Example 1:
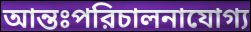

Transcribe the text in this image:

আন্তঃপরিচালনাযোগ্য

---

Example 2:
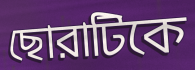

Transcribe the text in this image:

ছোরাটিকে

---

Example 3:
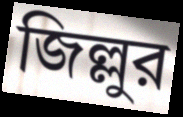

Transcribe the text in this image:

জিল্লুর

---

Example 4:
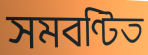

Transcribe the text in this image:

সমবণ্টিত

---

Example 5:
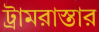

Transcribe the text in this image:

ট্রামরাস্তার